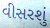
વીસરશું